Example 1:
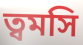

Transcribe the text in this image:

ত্বমসি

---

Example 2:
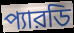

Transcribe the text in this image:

প্যারডি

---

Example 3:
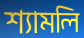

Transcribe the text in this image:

শ্যামলি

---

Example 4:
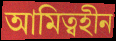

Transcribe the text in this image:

আমিত্বহীন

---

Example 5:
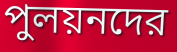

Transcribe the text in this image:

পুলয়নদের